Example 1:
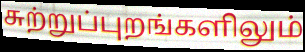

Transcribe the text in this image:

சுற்றுப்புறங்களிலும்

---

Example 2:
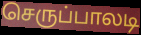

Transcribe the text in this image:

செருப்பாலடி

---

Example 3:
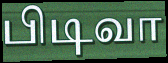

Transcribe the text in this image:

பிடிவா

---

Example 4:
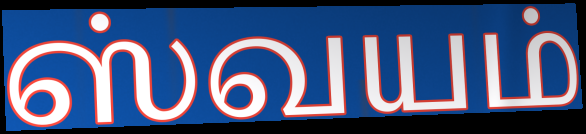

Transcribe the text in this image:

ஸ்வயம்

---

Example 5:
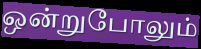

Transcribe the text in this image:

ஒன்றுபோலும்